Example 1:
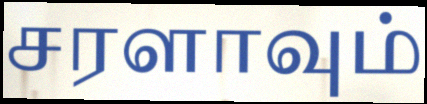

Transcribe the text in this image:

சரளாவும்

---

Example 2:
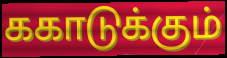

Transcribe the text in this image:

ககாடுக்கும்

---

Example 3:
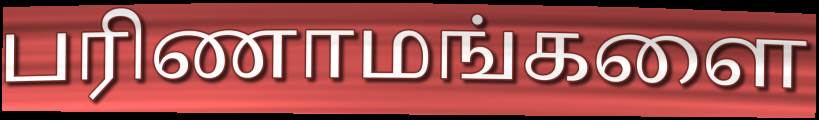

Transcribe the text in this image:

பரிணாமங்களை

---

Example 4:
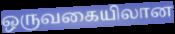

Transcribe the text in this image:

ஒருவகையிலான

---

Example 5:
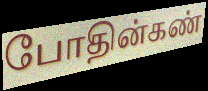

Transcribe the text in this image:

போதின்கண்